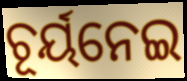
ଚୂର୍ୟନେଇ